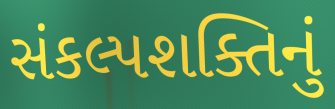
સંકલ્પશક્તિનું